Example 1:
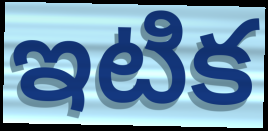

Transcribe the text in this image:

ఇటిక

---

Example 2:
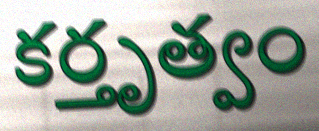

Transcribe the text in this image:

కర్తృత్వం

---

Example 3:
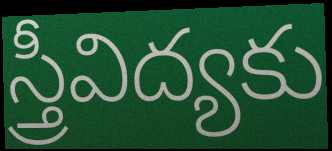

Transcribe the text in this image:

స్త్రీవిద్యకు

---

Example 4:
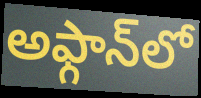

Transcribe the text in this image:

అఫ్గాన్‌లో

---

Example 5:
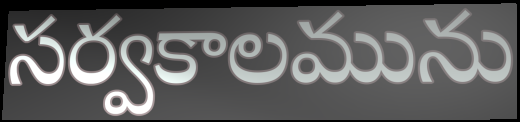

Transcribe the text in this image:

సర్వకాలమును